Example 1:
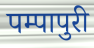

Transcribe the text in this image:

पम्पापुरी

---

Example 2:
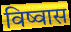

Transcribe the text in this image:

विष्वास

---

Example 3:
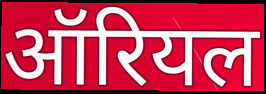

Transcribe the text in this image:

ऑरियल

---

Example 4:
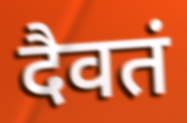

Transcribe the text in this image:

दैवतं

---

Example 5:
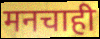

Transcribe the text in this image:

मनचाही